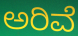
ಅರಿವೆ